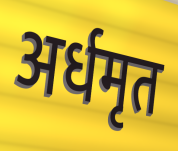
अर्धमृत